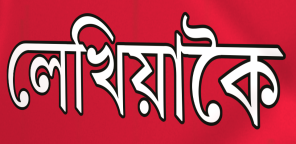
লেখিয়াকৈ